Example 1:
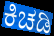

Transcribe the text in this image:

ಕಿಚಡಿ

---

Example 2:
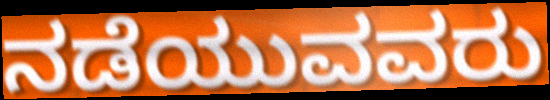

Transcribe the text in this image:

ನಡೆಯುವವರು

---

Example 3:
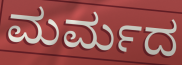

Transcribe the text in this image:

ಮರ್ಮದ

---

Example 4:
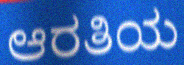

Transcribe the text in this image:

ಆರತಿಯ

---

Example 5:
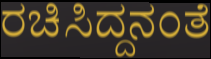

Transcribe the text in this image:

ರಚಿಸಿದ್ದನಂತೆ